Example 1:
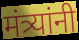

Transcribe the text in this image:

मंत्र्यांनी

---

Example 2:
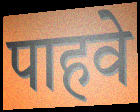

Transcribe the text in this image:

पाहवे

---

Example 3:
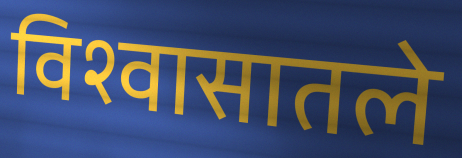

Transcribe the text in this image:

विश्वासातले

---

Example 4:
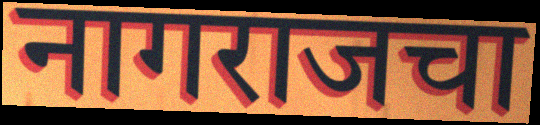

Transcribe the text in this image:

नागराजचा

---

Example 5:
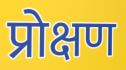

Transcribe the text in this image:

प्रोक्षण